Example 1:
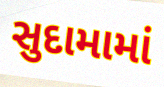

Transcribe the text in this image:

સુદામામાં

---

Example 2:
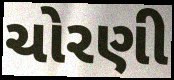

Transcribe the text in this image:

ચોરણી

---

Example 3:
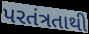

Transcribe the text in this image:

પરતંત્રતાથી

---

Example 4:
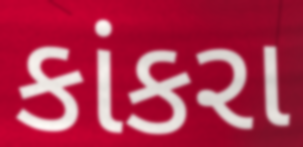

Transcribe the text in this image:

કાંકરા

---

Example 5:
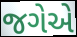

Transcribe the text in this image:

જગેએ